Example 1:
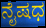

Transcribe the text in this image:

ನೈಷಧ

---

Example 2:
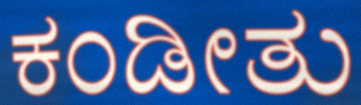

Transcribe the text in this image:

ಕಂಡೀತು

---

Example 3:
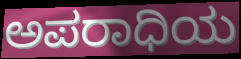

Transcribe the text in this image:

ಅಪರಾಧಿಯ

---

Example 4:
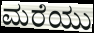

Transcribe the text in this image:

ಮರೆಯು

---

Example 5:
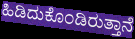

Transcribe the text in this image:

ಹಿಡಿದುಕೊಂಡಿರುತ್ತಾನೆ